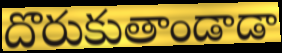
దొరుకుతాండాడా